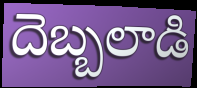
దెబ్బలాడి